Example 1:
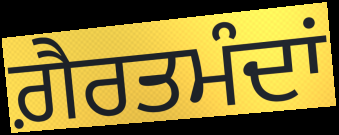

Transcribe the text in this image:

ਗ਼ੈਰਤਮੰਦਾਂ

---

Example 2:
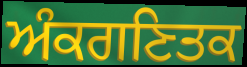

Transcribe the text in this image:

ਅੰਕਗਣਿਤਕ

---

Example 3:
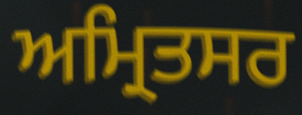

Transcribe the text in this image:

ਅਮ੍ਰਿਤਸਰ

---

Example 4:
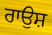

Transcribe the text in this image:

ਰਾਉਸ਼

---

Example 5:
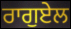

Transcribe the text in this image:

ਰਾਗੁਏਲ